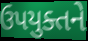
ઉપયુક્તને